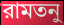
রামতনু